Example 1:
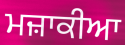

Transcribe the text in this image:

ਮਜ਼ਾਕੀਆ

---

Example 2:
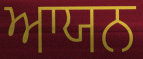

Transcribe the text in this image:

ਆਯਨ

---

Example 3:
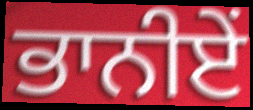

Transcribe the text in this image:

ਭਾਨੀਏਂ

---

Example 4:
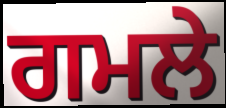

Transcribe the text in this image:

ਗਮਲੇ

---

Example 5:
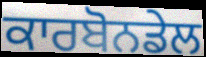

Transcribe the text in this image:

ਕਾਰਬੋਨਡੇਲ